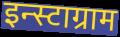
इन्स्टाग्राम